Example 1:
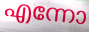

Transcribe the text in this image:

എന്നോ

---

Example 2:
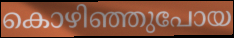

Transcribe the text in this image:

കൊഴിഞ്ഞുപോയ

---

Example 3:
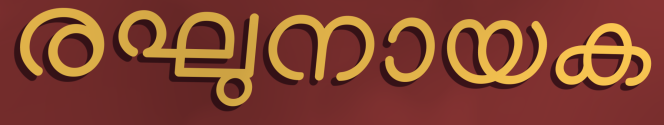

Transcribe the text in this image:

രഘുനായക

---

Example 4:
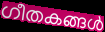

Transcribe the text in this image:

ഗീതകങ്ങൾ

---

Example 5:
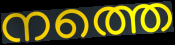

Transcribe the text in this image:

നത്തെ